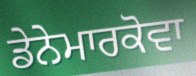
ਡੇਨੇਮਾਰਕੋਵਾ